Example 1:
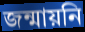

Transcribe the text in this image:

জন্মায়নি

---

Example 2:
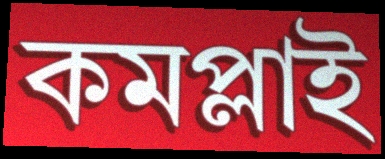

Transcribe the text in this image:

কমপ্লাই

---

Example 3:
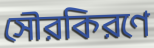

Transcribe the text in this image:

সৌরকিরণে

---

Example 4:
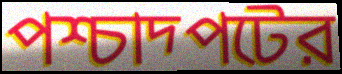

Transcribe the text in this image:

পশ্চাদ্পটের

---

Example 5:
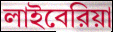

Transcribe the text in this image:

লাইবেরিয়া